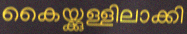
കൈയ്ക്കുള്ളിലാക്കി